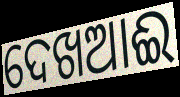
ଦେଖଆଈ